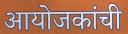
आयोजकांची